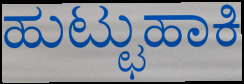
ಹುಟ್ಟುಹಾಕಿ